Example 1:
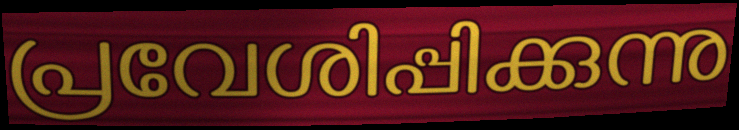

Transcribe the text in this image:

പ്രവേശിപ്പിക്കുന്നു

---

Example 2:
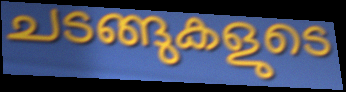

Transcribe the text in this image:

ചടങ്ങുകളുടെ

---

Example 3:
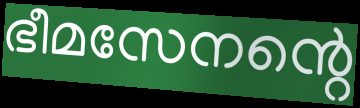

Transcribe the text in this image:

ഭീമസേനന്റെ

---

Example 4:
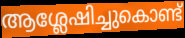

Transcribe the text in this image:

ആശ്ലേഷിച്ചുകൊണ്ട്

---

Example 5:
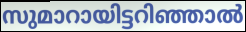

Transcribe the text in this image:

സുമാറായിട്ടറിഞ്ഞാൽ